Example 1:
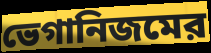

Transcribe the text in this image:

ভেগানিজমের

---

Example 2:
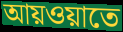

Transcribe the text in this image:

আয়ওয়াতে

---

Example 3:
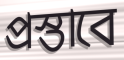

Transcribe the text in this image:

প্রস্তাবে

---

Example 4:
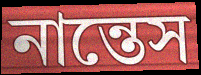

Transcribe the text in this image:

নান্তেস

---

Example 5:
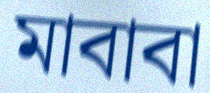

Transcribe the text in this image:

মাবাবা